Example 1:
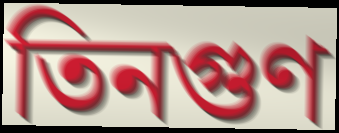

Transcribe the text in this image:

তিনগুণ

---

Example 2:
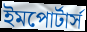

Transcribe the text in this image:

ইমপোর্টার্স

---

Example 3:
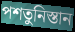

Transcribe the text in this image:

পশতুনিস্তান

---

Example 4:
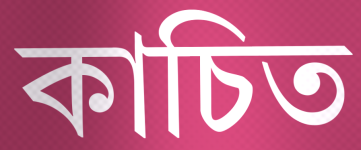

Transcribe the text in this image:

কাচিত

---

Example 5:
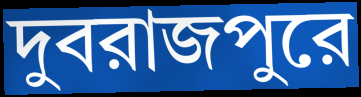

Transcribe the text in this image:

দুবরাজপুরে